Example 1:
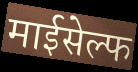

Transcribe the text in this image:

माईसेल्फ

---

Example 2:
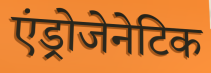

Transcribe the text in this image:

एंड्रोजेनेटिक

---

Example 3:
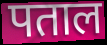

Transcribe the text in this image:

पताल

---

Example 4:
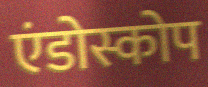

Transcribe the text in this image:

एंडोस्कोप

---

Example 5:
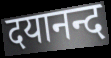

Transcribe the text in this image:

दयानन्द